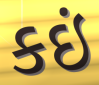
કઇં